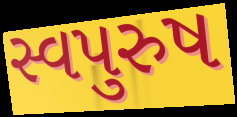
સ્વપુરુષ